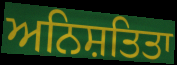
ਅਨਿਸ਼ਤਿਤਾ